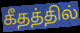
கீதத்தில்